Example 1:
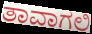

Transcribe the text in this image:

ತಾವಾಗಲಿ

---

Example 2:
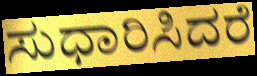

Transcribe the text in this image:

ಸುಧಾರಿಸಿದರೆ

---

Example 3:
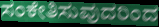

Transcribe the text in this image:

ಸಂಕೇತಿಸುವುದರಿಂದ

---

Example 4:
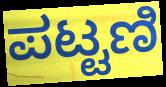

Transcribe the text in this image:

ಪಟ್ಟಣಿ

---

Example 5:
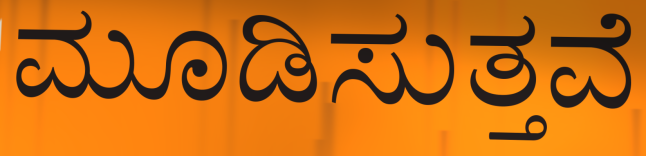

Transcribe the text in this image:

ಮೂಡಿಸುತ್ತವೆ